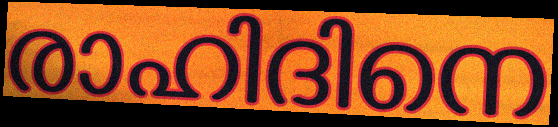
രാഹിദിനെ